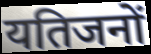
यतिजनों